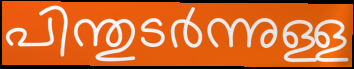
പിന്തുടർന്നുള്ള